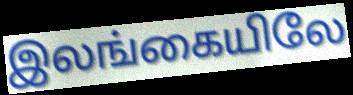
இலங்கையிலே